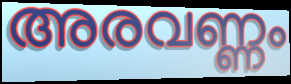
അരവണ്ണം